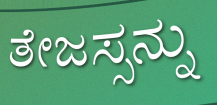
ತೇಜಸ್ಸನ್ನು